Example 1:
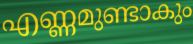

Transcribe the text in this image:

എണ്ണമുണ്ടാകും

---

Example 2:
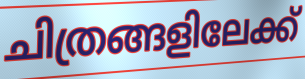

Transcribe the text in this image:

ചിത്രങ്ങളിലേക്ക്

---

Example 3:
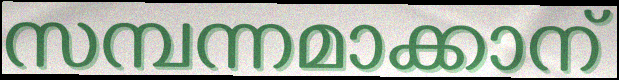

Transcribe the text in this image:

സമ്പന്നമാക്കാന്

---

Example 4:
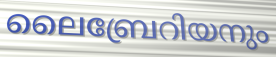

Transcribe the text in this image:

ലൈബ്രേറിയനും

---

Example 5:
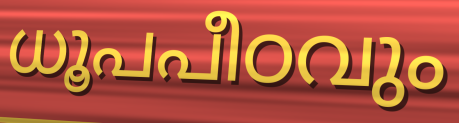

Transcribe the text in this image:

ധൂപപീഠവും